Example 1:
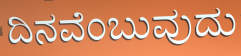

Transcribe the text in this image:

ದಿನವೆಂಬುವುದು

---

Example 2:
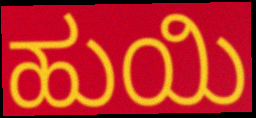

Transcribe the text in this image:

ಹುಯಿ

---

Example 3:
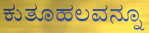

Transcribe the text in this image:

ಕುತೂಹಲವನ್ನೂ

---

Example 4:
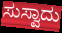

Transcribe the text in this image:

ಸುಸ್ವಾದು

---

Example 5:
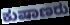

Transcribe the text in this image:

ಕುಷಾಣರು